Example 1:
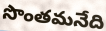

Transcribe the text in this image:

సొంతమనేది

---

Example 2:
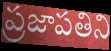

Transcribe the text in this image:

ప్రజాపతిని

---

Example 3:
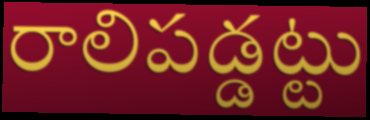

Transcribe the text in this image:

రాలిపడ్డట్టు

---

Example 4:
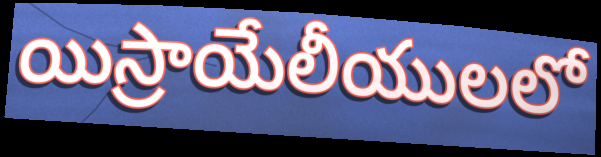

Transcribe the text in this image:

యిస్రాయేలీయులలో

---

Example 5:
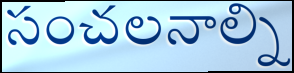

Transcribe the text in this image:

సంచలనాల్ని